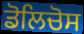
ਡੋਲਿਚੋਸ